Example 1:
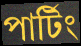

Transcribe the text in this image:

পার্টিং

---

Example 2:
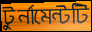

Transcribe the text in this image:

টুর্নামেন্টটি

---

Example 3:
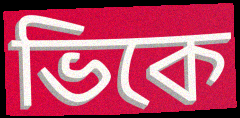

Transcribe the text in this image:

ভিকে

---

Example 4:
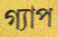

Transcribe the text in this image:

গ্যাপ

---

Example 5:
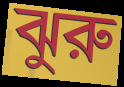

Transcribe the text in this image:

ঝুরু